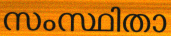
സംസ്ഥിതാ